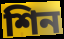
শিন